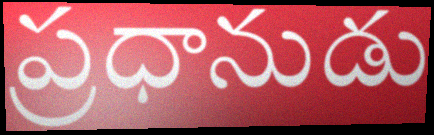
ప్రధానుడు